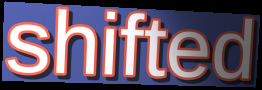
shifted